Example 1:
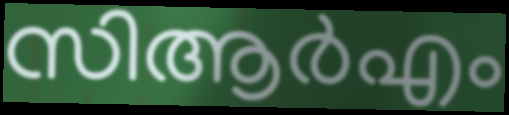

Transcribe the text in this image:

സിആർഎം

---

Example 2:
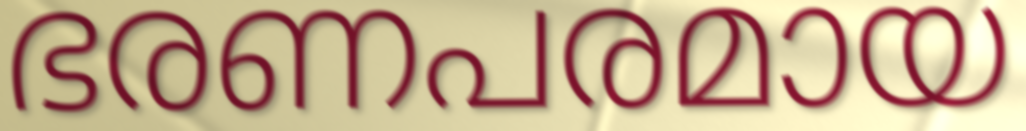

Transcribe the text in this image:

ഭരണപരമായ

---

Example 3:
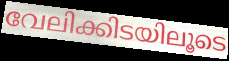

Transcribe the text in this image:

വേലിക്കിടയിലൂടെ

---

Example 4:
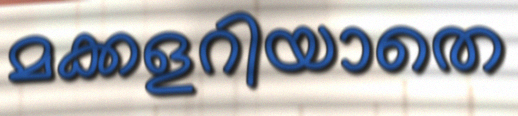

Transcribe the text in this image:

മക്കളറിയാതെ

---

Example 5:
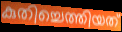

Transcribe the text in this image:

കുതിച്ചെത്തിയത്